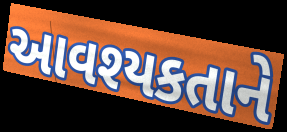
આવશ્યકતાને